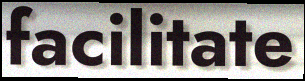
facilitate